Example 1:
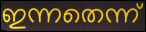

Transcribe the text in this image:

ഇന്നതെന്ന്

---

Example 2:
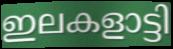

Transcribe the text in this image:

ഇലകളാട്ടി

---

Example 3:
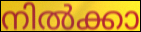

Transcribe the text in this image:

നിൽക്കാ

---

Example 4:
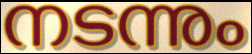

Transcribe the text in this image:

നടന്നും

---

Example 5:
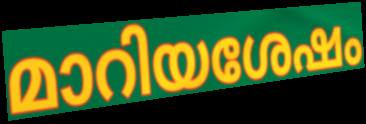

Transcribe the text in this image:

മാറിയശേഷം